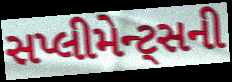
સપ્લીમેન્ટ્સની